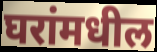
घरांमधील